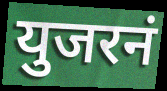
युजरनं